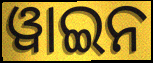
ୱାଇନ